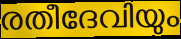
രതീദേവിയും